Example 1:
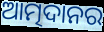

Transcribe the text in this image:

ଆତ୍ମଦାନର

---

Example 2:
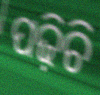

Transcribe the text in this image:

ପଢ଼ିଚି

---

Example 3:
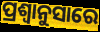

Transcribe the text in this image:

ପ୍ରଶ୍ବାନୁସାରେ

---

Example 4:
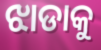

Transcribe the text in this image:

ଝାଡାକୁ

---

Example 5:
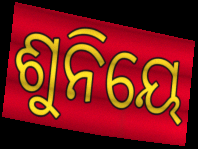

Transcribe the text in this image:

ଶୁନିୟେ